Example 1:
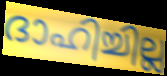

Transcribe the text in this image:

ദാഹിച്ചില്ല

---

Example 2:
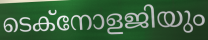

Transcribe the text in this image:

ടെക്നോളജിയും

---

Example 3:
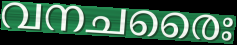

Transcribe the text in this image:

വനചരൈഃ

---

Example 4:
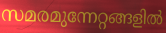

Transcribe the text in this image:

സമരമുന്നേറ്റങ്ങളിൽ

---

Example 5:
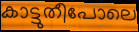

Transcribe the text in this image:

കാട്ടുതീപോലെ